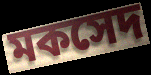
মকসেদ